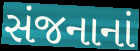
સંજનાનાં